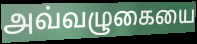
அவ்வழுகையை